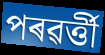
পৰৱৰ্ত্তী